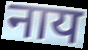
नाय